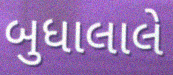
બુધાલાલે